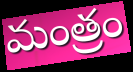
మంత్రం